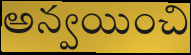
అన్వయించి